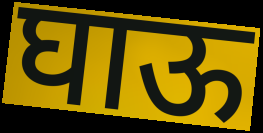
घाऊ